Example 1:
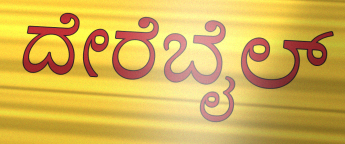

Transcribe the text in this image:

ದೇರೆಬೈಲ್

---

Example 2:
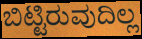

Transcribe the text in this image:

ಬಿಟ್ಟಿರುವುದಿಲ್ಲ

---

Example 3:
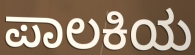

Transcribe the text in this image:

ಪಾಲಕಿಯ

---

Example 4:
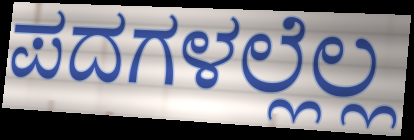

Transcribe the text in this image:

ಪದಗಳಲ್ಲೆಲ್ಲ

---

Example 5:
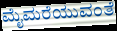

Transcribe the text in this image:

ಮೈಮರೆಯುವಂತೆ